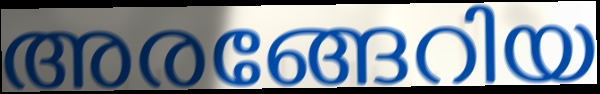
അരങ്ങേറിയ